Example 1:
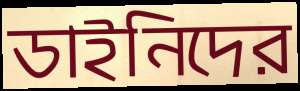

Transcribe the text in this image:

ডাইনিদের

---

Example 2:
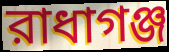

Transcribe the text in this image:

রাধাগঞ্জ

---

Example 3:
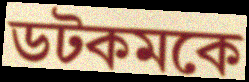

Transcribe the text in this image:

ডটকমকে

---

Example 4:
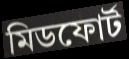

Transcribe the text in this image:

মিডফোর্ট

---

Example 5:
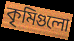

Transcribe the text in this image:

কৃমিগুলো